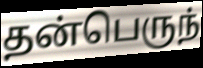
தன்பெருந்